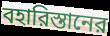
বহারিস্তানের